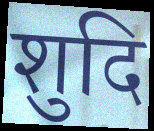
शुदि